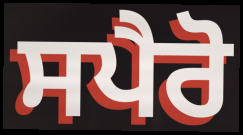
ਸਪੈਰੋ